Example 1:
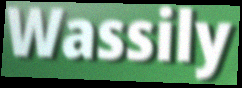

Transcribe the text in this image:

Wassily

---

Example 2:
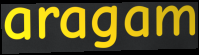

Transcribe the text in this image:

aragam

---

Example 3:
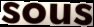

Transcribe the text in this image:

sous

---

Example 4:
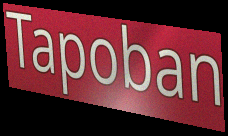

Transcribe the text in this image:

Tapoban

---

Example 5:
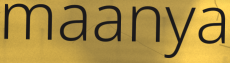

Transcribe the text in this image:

maanya